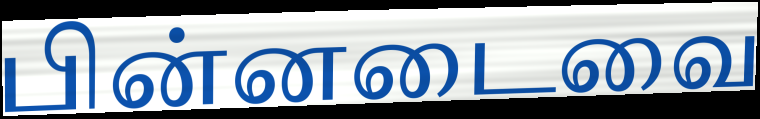
பின்னடைவை